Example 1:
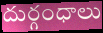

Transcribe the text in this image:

దుర్గంధాలు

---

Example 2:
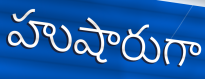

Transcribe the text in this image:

హుషారుగా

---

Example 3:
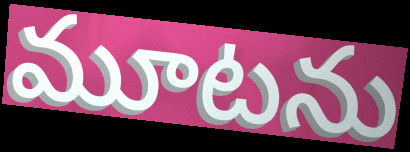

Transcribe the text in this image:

మూటను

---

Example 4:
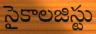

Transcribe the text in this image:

సైకాలజిస్టు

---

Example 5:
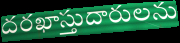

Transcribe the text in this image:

దరఖాస్తుదారులను